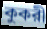
কুকরী